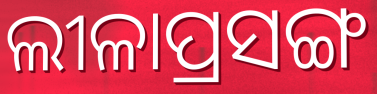
ଲୀଳାପ୍ରସଙ୍ଗ